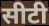
सीटी